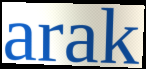
arak